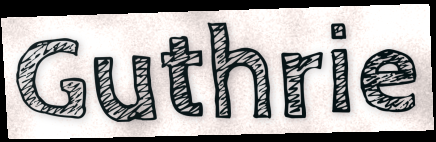
Guthrie